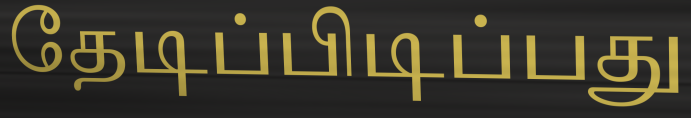
தேடிப்பிடிப்பது